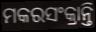
ମକରସଂକ୍ରାନ୍ତି